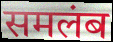
समलंब